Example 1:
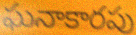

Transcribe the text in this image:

ఘనాకారపు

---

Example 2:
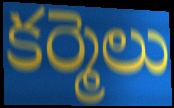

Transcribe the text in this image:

కర్మెలు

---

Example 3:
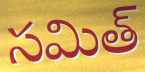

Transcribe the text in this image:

సమిత్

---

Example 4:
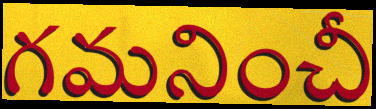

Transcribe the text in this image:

గమనించీ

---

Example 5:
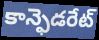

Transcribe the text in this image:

కాన్ఫెడరేట్